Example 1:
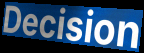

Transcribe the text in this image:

Decision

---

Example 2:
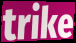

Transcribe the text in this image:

trike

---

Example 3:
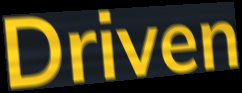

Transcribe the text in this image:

Driven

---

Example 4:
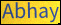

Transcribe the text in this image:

Abhay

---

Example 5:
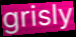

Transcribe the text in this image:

grisly